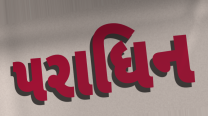
પરાધિન